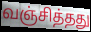
வஞ்சித்தது